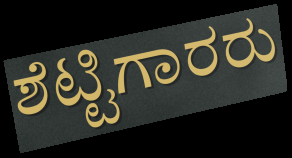
ಶೆಟ್ಟಿಗಾರರು